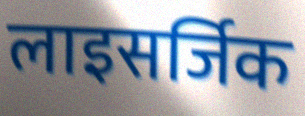
लाइसर्जिक